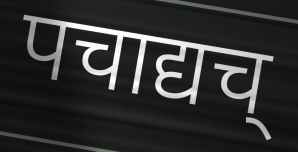
पचाद्यच्